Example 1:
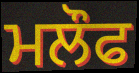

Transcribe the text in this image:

ਮਲੌਫ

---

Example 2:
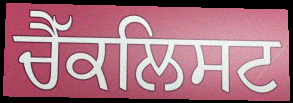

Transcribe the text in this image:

ਚੈੱਕਲਿਸਟ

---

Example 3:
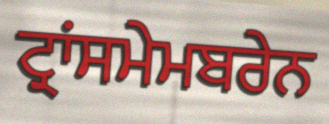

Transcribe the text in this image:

ਟ੍ਰਾਂਸਮੇਮਬਰੇਨ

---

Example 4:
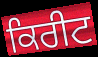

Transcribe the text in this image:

ਕਿਰੀਟ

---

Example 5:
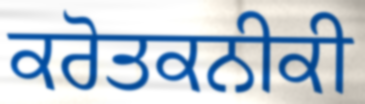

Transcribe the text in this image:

ਕਰੋਤਕਨੀਕੀ